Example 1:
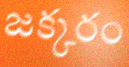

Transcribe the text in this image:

జక్కరం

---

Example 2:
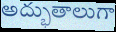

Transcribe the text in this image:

అద్భుతాలుగా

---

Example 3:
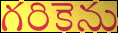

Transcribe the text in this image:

గరికెను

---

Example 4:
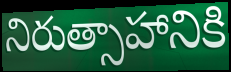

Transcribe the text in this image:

నిరుత్సాహానికి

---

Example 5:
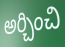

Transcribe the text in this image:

అర్చించి